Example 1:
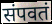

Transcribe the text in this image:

संपवतं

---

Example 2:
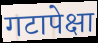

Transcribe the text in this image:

गटापेक्षा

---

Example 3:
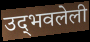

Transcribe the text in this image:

उद्‌भवलेली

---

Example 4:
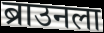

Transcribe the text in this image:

ब्राउनला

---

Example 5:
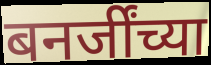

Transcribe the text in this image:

बनर्जींच्या